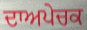
ਦਾਅਪੇਚਕ